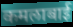
कमलाबाई